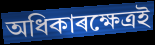
অধিকাৰক্ষেত্ৰই